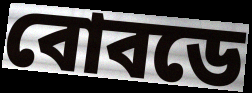
বোবডে